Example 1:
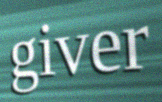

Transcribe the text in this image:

giver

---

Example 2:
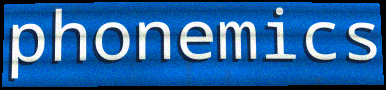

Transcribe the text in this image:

phonemics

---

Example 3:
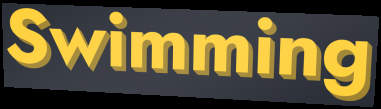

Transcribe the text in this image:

Swimming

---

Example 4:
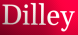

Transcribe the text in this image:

Dilley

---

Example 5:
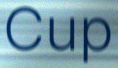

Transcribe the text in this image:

Cup